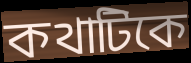
কথাটিকে